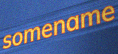
somename